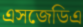
এসজেডিএ